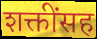
शक्तींसह